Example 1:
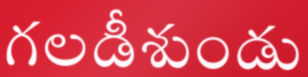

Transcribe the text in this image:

గలడీశుండు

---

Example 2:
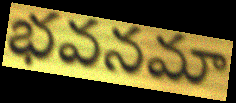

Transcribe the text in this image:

భవనమా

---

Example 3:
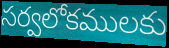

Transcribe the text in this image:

సర్వలోకములకు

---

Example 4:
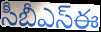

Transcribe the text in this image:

సీబీఎస్ఈ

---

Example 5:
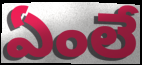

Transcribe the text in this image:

ఏంలే